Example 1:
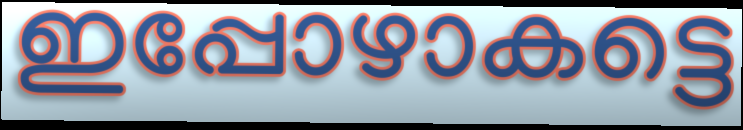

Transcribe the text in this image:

ഇപ്പോഴാകട്ടെ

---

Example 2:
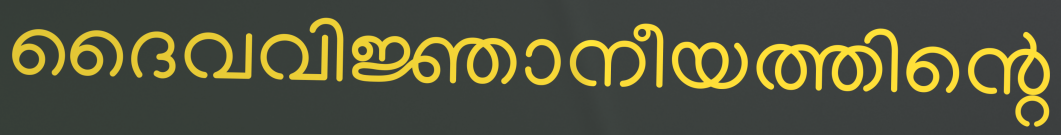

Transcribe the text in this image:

ദൈവവിജ്ഞാനീയത്തിന്റെ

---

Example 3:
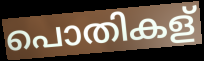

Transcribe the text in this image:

പൊതികള്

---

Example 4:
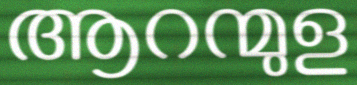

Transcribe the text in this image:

ആറന്മുള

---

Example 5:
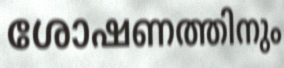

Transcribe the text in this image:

ശോഷണത്തിനും